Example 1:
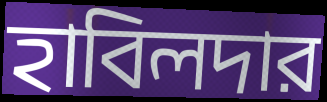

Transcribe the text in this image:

হাবিলদার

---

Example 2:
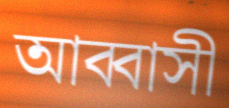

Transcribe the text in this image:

আব্বাসী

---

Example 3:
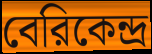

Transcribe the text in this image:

বেরিকেন্দ্র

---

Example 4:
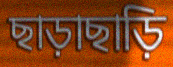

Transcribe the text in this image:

ছাড়াছাড়ি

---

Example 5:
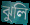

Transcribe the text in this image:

ঝুলি